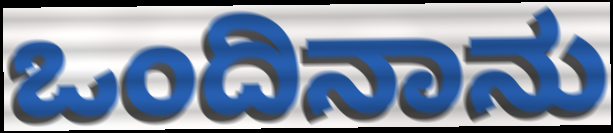
ಒಂದಿನಾನು